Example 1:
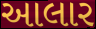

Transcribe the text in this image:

આલાર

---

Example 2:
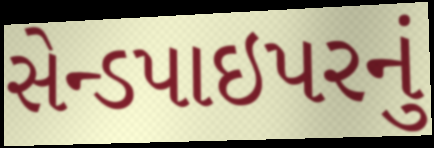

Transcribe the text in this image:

સેન્ડપાઇપરનું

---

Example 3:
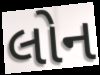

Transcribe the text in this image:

લોન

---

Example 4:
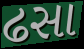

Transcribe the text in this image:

ઢસા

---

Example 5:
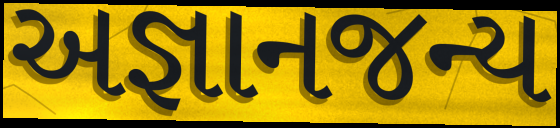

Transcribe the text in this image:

અજ્ઞાનજન્ય